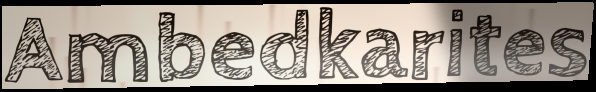
Ambedkarites